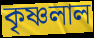
কৃষ্ণলাল